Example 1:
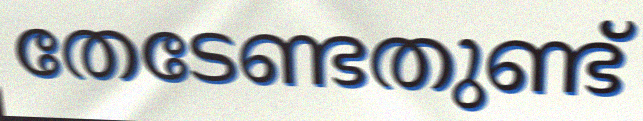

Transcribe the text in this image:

തേടേണ്ടതുണ്ട്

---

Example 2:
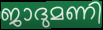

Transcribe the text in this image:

ജാദുമണി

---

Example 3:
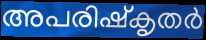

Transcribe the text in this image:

അപരിഷ്കൃതർ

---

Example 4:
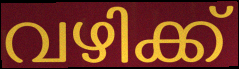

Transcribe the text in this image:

വഴിക്ക്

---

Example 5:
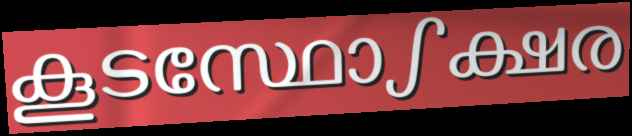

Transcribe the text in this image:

കൂടസ്ഥോഽക്ഷര